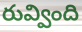
రువ్వింది